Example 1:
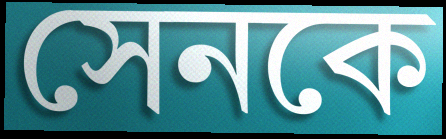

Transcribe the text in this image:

সেনকে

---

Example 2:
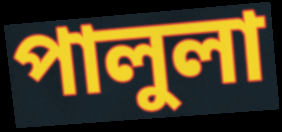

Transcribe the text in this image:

পালুলা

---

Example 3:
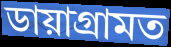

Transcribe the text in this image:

ডায়াগ্ৰামত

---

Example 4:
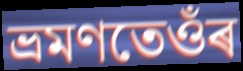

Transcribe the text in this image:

ভ্ৰমণতেওঁৰ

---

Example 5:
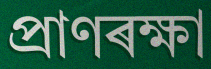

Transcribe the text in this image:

প্ৰাণৰক্ষা